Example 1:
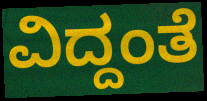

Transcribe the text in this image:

ವಿದ್ದಂತೆ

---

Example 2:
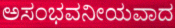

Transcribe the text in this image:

ಅಸಂಭವನೀಯವಾದ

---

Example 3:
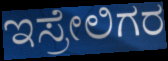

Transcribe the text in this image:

ಇಸ್ರೇಲಿಗರ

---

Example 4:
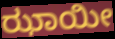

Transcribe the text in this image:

ಝಾಯೀ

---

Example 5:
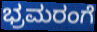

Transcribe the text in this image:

ಭ್ರಮರಂಗೆ